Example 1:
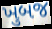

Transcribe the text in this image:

ખુબજ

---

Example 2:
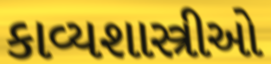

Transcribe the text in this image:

કાવ્યશાસ્ત્રીઓ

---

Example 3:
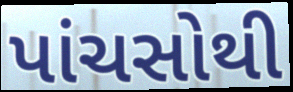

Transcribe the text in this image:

પાંચસોથી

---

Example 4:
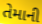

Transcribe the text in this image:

તેમાની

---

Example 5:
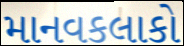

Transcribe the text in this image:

માનવકલાકો